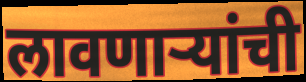
लावणाऱ्यांची